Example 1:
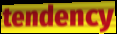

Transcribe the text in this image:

tendency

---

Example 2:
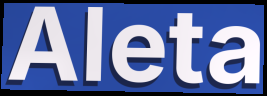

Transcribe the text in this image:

Aleta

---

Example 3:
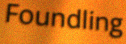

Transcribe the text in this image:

Foundling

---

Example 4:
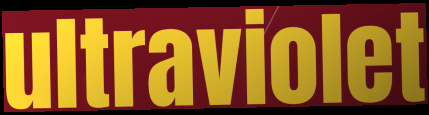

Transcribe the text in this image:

ultraviolet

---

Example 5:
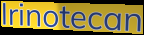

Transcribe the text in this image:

Irinotecan